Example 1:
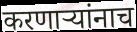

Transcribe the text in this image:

करणार्‍यांनाच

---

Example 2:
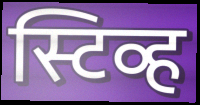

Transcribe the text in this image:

स्टिव्ह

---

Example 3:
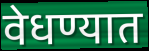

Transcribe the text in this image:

वेधण्यात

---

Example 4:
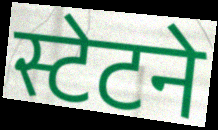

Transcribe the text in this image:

स्टेटने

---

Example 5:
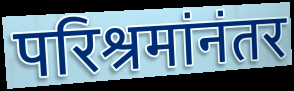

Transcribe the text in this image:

परिश्रमांनंतर